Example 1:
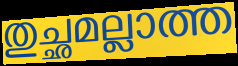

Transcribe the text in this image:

തുച്ഛമല്ലാത്ത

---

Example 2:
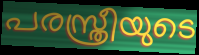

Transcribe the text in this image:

പരസ്ത്രീയുടെ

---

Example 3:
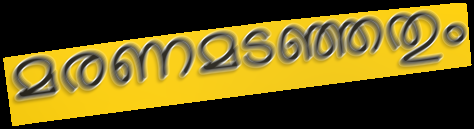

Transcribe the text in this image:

മരണമടഞ്ഞതും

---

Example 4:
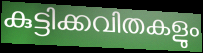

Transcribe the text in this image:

കുട്ടിക്കവിതകളും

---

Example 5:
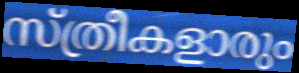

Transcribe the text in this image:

സ്ത്രീകളാരും